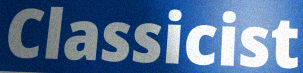
Classicist